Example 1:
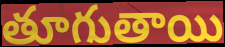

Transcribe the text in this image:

తూగుతాయి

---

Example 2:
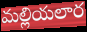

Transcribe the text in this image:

మల్లియలార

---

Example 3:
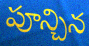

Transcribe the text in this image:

పూన్చిన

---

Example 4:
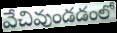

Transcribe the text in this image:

వేచివుండడంలో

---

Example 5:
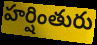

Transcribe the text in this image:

హర్షింతురు